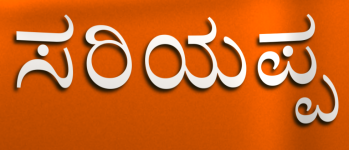
ಸರಿಯಪ್ಪ